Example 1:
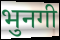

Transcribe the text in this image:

भुनगी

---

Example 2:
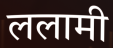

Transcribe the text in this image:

ललामी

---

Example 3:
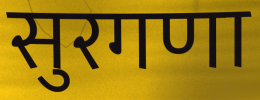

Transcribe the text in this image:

सुरगणा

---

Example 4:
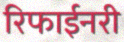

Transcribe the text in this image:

रिफाईनरी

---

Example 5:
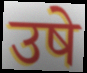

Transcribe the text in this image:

उषे